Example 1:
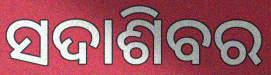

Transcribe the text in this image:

ସଦାଶିବର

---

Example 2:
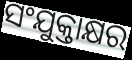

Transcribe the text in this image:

ସଂଯୁକ୍ତାକ୍ଷର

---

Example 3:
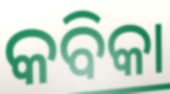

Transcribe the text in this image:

କବିକା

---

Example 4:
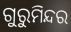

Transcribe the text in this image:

ଗୁରୁମିନ୍ଦର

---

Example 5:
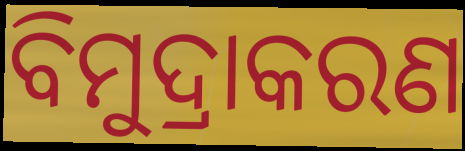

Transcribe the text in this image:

ବିମୁଦ୍ରାକରଣ